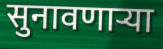
सुनावणाऱ्या